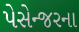
પેસેન્જરના